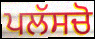
ਪਲੱਸਚੋ